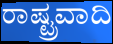
ರಾಷ್ಟ್ರವಾದಿ